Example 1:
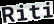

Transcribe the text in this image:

Riti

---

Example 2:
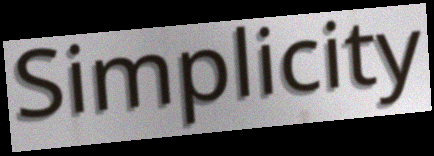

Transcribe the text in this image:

Simplicity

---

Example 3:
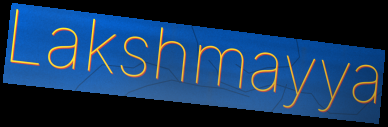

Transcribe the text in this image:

Lakshmayya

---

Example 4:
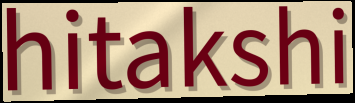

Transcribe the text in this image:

hitakshi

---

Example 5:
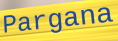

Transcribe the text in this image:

Pargana